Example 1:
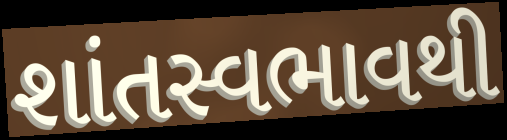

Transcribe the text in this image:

શાંતસ્વભાવથી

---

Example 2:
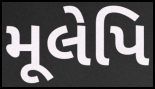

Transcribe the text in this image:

મૂલેપિ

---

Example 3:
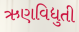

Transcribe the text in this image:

ઋણવિદ્યુતી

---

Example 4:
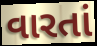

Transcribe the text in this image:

વારતાં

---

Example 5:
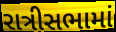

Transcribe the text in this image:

રાત્રીસભામાં